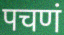
पचणं